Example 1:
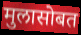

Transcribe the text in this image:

मुलासोबत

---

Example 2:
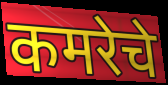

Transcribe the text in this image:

कमरेचे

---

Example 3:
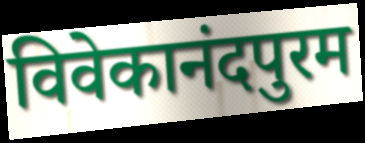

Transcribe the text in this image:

विवेकानंदपुरम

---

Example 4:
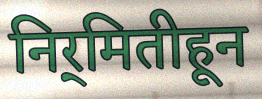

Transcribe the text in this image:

निर्मितीहून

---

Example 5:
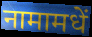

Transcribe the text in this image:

नामामधें